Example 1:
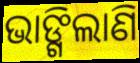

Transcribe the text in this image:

ଭାଙ୍ଗିଲାଣି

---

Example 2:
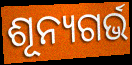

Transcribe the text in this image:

ଶୂନ୍ୟଗର୍ଭ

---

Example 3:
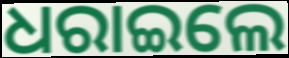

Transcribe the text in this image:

ଧରାଇଲେ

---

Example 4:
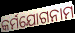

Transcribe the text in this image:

କର୍ମଯୋଗନାମ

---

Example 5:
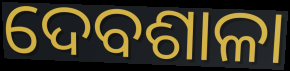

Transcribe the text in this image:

ଦେବଶାଳା